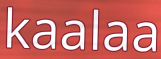
kaalaa